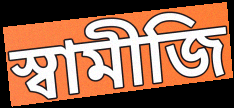
স্বামীজি